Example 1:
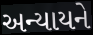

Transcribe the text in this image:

અન્યાયને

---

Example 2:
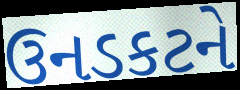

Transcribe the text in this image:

ઉનડકટને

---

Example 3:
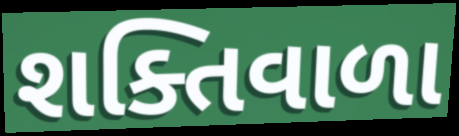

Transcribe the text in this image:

શક્તિવાળા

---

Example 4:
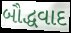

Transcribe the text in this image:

બૌદ્ધવાદ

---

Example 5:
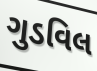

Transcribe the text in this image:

ગુડવિલ